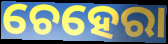
ଚେହେରା